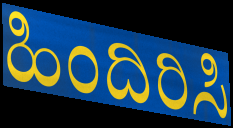
ಹಿಂದಿರಿಸಿ